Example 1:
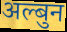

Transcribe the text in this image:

अल्बुन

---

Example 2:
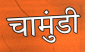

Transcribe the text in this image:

चामुंडी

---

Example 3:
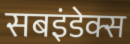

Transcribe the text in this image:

सबइंडेक्स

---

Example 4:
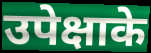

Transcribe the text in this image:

उपेक्षाके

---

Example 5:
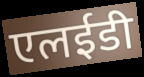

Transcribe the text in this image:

एलईडी